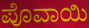
ಪೊವಾಯಿ